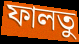
ফালতু